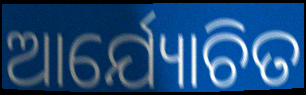
ଆର୍ଯ୍ୟୋଚିତ